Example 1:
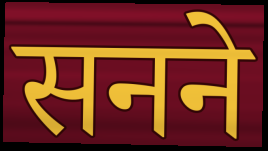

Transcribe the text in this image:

सनने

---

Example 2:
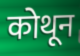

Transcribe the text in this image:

कोथून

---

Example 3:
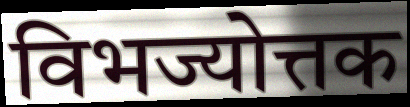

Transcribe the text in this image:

विभज्योत्तक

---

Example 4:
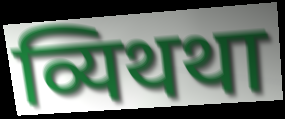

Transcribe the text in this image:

व्यिथथा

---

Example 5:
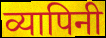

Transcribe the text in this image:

व्यापिनी